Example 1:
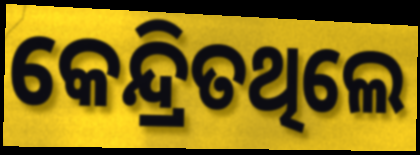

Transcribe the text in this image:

କେନ୍ଦ୍ରିତଥିଲେ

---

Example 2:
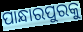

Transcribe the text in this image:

ପାନ୍ଧାରପୁରକୁ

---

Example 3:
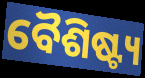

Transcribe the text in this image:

ବୈଶିଷ୍ଟ୍ୟ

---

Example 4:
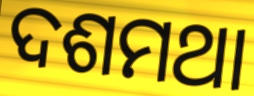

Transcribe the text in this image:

ଦଶମଥା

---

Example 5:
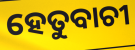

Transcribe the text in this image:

ହେତୁବାଚୀ